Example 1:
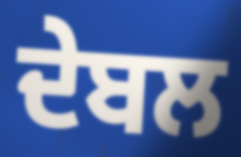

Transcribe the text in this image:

ਦੇਬਲ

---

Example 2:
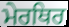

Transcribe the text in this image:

ਮੇਰਥਿਰ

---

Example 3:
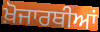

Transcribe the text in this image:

ਖ਼ੋਜਾਰਥੀਆਂ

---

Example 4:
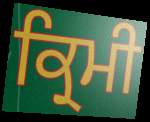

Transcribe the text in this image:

ਕ੍ਰਿਮੀ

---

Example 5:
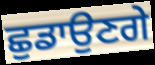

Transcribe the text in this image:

ਛੁਡਾਉਣਗੇ